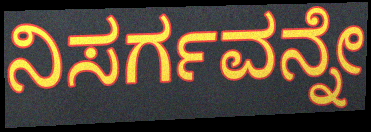
ನಿಸರ್ಗವನ್ನೇ